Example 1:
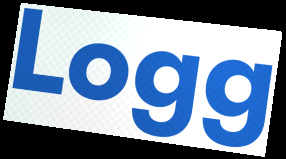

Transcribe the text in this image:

Logg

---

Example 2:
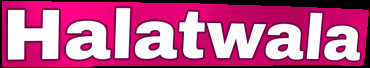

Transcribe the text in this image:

Halatwala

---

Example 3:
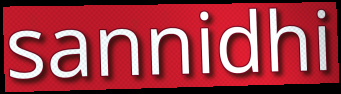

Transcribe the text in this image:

sannidhi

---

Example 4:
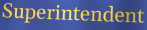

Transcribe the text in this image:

Superintendent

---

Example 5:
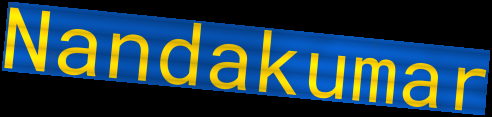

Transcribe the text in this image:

Nandakumar